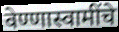
वेण्णास्वामींचे